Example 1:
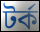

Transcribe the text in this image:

টর্ক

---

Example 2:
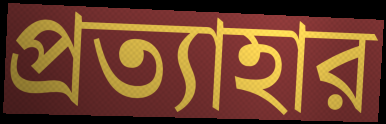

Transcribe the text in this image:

প্রত্যাহার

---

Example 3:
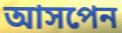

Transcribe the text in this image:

আসপেন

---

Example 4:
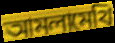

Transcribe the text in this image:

আমলামেথি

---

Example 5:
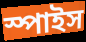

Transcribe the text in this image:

স্পাইস